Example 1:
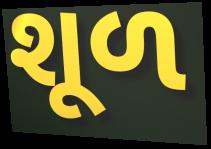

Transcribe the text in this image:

શૂળ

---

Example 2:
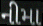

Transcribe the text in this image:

નીમા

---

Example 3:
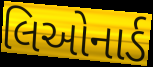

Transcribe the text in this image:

લિઓનાર્ડ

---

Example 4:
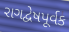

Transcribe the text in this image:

રાગદ્વેષપૂર્વક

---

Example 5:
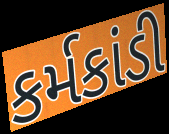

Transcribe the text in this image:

કર્મકાંડી